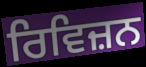
ਰਿਵਿਜ਼ਨ